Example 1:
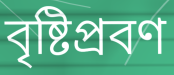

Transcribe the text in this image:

বৃষ্টিপ্রবণ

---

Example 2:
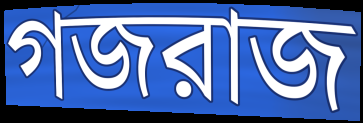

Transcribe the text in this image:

গজরাজ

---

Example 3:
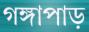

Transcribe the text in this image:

গঙ্গাপাড়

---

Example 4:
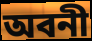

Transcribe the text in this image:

অবনী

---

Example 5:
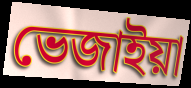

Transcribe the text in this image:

ভেজাইয়া